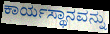
ಕಾರ್ಯಸ್ಥಾನವನ್ನು